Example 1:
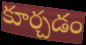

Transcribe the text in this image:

కూర్చడం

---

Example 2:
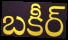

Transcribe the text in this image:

బకీర్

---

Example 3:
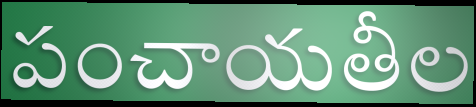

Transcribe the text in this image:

పంచాయతీల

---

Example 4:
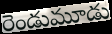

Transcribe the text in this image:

రెండుమూడు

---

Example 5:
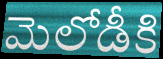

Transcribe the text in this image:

మెలోడీకి